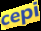
cepi